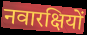
नवारक्षियों